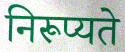
निरूप्यते